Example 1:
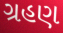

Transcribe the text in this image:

ગ્રહણ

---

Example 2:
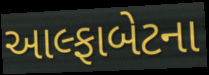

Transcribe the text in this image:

આલ્ફાબેટના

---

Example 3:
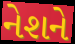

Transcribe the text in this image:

નેશને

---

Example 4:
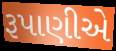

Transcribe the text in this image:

રૂપાણીએ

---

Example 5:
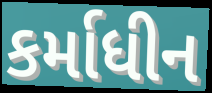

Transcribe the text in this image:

કર્માધીન